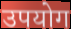
उपयोग